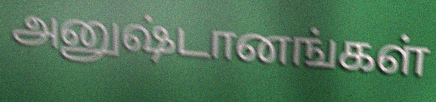
அனுஷ்டானங்கள்